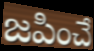
జపించే